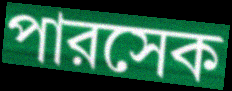
পারসেক